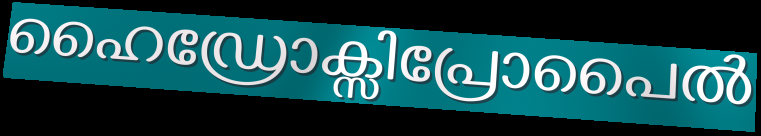
ഹൈഡ്രോക്സിപ്രോപൈൽ